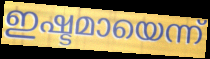
ഇഷ്ടമായെന്ന്